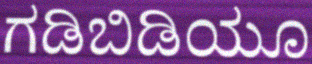
ಗಡಿಬಿಡಿಯೂ